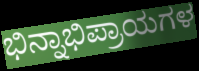
ಭಿನ್ನಾಭಿಪ್ರಾಯಗಳ